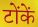
टोंकें